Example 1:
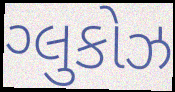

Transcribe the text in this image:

ગ્લુકોઝ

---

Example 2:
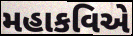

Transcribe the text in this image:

મહાકવિએ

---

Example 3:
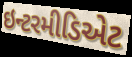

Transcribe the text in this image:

ઇન્ટરમીડિએટ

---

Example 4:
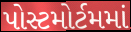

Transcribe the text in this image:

પોસ્ટમોર્ટમમાં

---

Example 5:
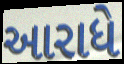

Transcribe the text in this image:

આરાધે